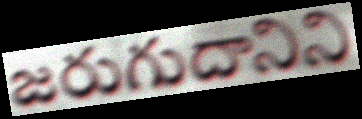
జరుగుదానిని